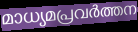
മാധ്യമപ്രവർത്തന